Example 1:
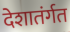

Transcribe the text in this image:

देशातंर्गत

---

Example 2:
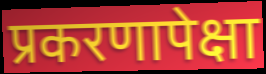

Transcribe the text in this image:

प्रकरणापेक्षा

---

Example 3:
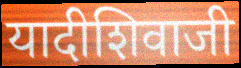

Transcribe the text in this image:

यादीशिवाजी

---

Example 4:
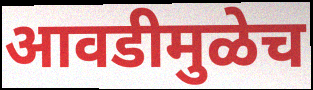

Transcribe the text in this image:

आवडीमुळेच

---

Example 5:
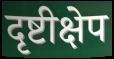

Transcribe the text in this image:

दृष्टीक्षेप